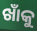
ଖାଁକୁ